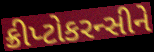
ક્રીપ્ટોકરન્સીને